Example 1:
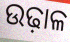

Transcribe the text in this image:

ଉଢ଼ାଳ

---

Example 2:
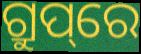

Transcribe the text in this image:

ଗ୍ରୁପ୍‌ରେ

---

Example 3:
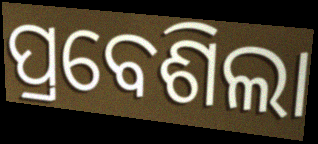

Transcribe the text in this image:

ପ୍ରବେଶିଲା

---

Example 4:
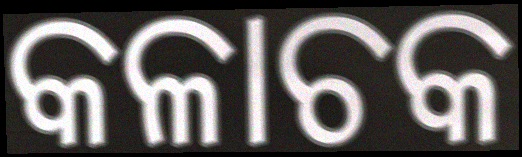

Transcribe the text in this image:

କଳାଚକ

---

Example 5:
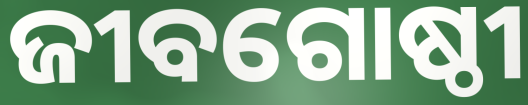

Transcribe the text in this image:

ଜୀବଗୋଷ୍ଠୀ